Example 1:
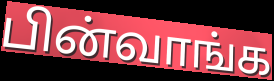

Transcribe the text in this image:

பின்வாங்க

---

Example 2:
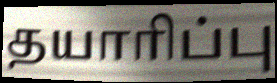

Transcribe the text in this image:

தயாரிப்பு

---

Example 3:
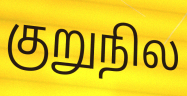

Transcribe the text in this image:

குறுநில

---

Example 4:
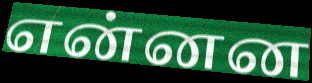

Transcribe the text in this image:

என்னன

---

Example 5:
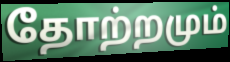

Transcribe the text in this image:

தோற்றமும்